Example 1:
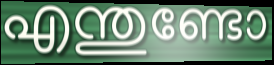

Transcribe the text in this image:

എന്തുണ്ടോ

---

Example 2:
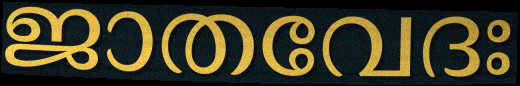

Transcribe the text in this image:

ജാതവേദഃ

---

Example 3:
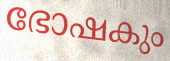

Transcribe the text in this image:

ഭോഷകും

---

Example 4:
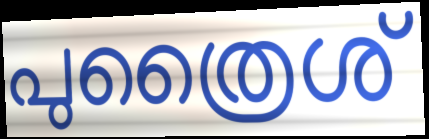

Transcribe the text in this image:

പുത്രൈശ്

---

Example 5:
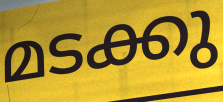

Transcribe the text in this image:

മടക്കു